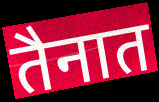
तैनात